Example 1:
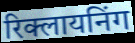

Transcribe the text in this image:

रिक्लायनिंग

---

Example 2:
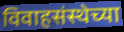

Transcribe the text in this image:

विवाहसंस्थेच्या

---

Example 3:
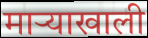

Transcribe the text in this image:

माऱ्याखाली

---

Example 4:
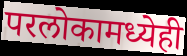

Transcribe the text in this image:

परलोकामध्येही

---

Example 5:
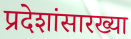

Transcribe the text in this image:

प्रदेशांसारख्या